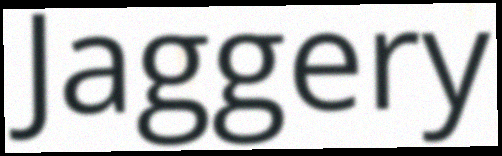
Jaggery